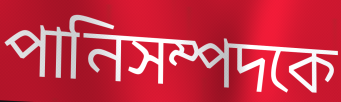
পানিসম্পদকে